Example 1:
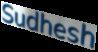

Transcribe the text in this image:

Sudhesh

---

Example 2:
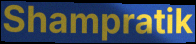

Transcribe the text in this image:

Shampratik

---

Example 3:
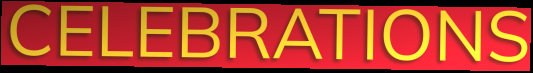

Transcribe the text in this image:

CELEBRATIONS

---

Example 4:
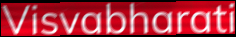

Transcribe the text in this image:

Visvabharati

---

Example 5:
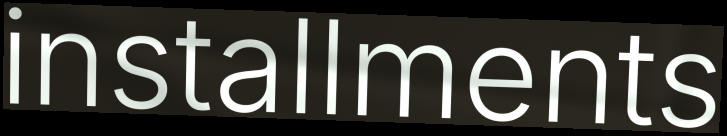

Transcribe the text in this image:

installments